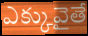
ఎక్కువైతే